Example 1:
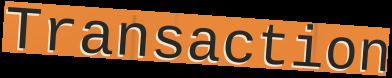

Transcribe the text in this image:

Transaction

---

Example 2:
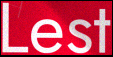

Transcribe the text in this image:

Lest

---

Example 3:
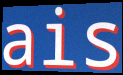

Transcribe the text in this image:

ais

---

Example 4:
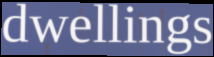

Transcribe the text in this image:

dwellings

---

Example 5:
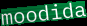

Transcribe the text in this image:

moodida